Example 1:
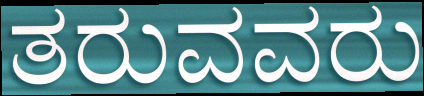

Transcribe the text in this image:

ತರುವವರು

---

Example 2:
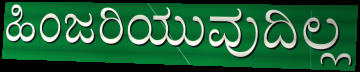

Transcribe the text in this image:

ಹಿಂಜರಿಯುವುದಿಲ್ಲ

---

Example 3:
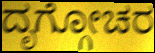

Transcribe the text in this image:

ದೃಗ್ಗೋಚರ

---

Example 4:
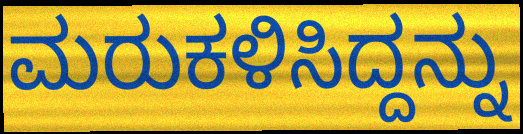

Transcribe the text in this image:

ಮರುಕಳಿಸಿದ್ದನ್ನು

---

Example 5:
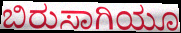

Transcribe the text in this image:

ಬಿರುಸಾಗಿಯೂ